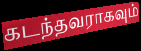
கடந்தவராகவும்